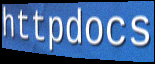
httpdocs